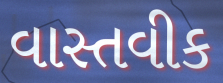
વાસ્તવીક